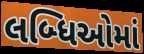
લબ્ધિઓમાં